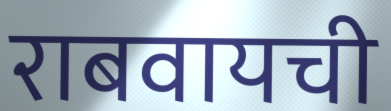
राबवायची